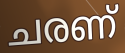
ചരണ്